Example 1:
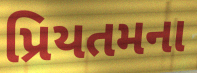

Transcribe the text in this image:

પ્રિયતમના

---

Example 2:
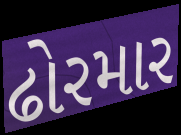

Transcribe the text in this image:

ઢોરમાર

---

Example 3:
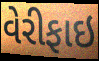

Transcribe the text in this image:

વેરીફાઇ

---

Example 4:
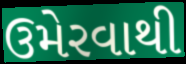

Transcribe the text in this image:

ઉમેરવાથી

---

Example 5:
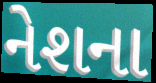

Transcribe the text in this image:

નેશના